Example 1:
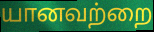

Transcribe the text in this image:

யானவற்றை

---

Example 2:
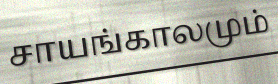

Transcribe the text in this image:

சாயங்காலமும்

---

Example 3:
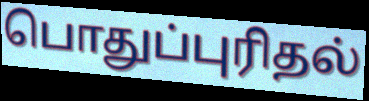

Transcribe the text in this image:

பொதுப்புரிதல்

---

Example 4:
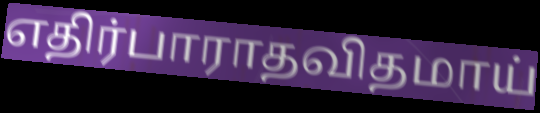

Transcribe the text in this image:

எதிர்பாராதவிதமாய்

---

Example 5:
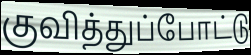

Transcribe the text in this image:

குவித்துப்போட்டு